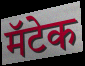
मॅटेक